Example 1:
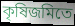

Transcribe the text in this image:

কৃষিজমিতে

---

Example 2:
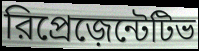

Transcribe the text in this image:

রিপ্রেজ়েন্টেটিভ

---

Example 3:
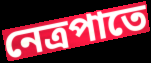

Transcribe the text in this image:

নেত্রপাতে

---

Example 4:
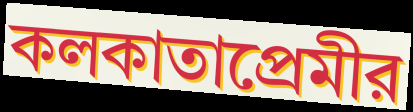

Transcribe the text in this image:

কলকাতাপ্রেমীর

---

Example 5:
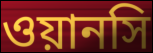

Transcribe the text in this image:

ওয়ানসি